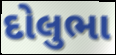
દોલુભા